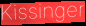
Kissinger